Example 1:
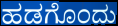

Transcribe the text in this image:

ಹಡಗೊಂದು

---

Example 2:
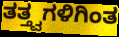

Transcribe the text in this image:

ತತ್ತ್ವಗಳಿಗಿಂತ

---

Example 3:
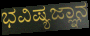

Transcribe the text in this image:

ಭವಿಷ್ಯಜ್ಞಾನ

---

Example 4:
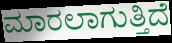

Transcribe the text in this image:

ಮಾರಲಾಗುತ್ತಿದೆ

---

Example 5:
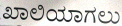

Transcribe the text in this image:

ಖಾಲಿಯಾಗಲು